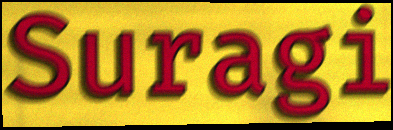
Suragi